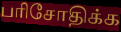
பரிசோதிக்க